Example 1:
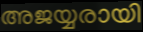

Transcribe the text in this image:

അജയ്യരായി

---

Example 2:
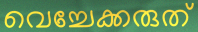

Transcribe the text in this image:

വെച്ചേക്കരുത്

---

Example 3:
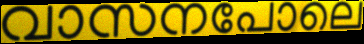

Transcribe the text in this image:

വാസനപോലെ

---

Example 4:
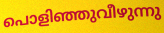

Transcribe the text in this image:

പൊളിഞ്ഞുവീഴുന്നു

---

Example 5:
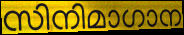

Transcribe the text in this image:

സിനിമാഗാന